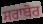
ਸਰਾਬੋਰ